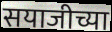
सयाजीच्या